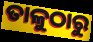
ତାଳୁଠାରୁ